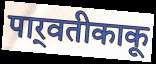
पार्वतीकाकू